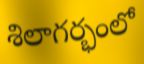
శిలాగర్భంలో